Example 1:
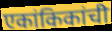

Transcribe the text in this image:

एकांकिकांची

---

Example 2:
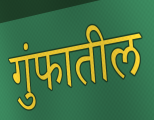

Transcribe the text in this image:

गुंफातील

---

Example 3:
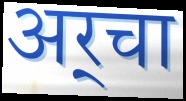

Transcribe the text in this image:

अर्चा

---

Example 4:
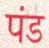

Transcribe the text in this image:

पंड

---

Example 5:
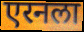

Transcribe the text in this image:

एरनला